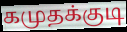
கமுதக்குடி